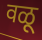
वळू